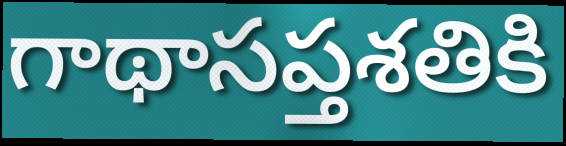
గాథాసప్తశతికి